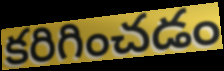
కరిగించడం